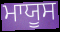
ਮਾਯੂਸ